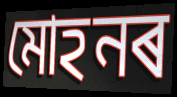
মোহনৰ